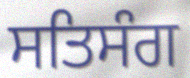
ਸਤਿਸੰਗ